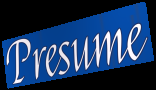
Presume